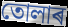
তোলাৰ